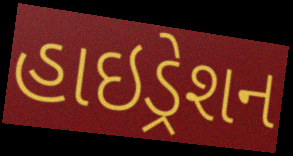
હાઇડ્રેશન